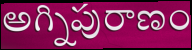
అగ్నిపురాణం